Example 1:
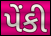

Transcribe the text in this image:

પેંકી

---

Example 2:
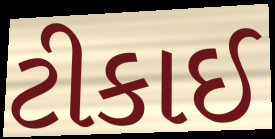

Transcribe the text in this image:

ટીકાઈ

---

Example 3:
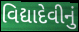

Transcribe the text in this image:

વિદ્યાદેવીનું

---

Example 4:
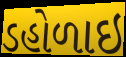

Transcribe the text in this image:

ડહોળાઇ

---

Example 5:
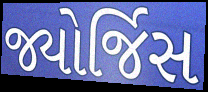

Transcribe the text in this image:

જ્યોર્જિસ